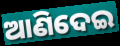
ଆଣିଦେଇ